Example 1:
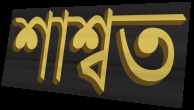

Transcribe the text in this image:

শাশ্বত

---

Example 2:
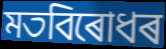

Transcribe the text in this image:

মতবিৰোধৰ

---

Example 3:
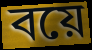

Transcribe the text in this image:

বয়ে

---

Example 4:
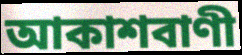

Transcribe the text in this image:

আকাশবাণী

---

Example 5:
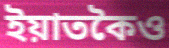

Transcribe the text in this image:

ইয়াতকৈও